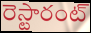
రెస్టారంట్